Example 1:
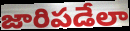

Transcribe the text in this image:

జారిపడేలా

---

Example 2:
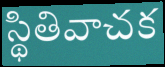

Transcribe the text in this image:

స్థితివాచక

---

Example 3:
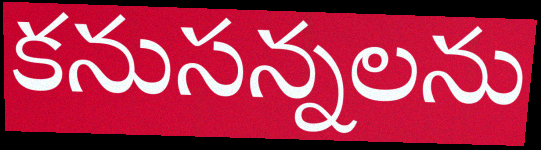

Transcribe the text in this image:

కనుసన్నలను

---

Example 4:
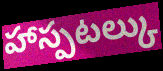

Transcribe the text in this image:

హాస్పటల్కు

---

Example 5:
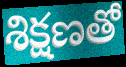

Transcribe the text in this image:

శిక్షణతో